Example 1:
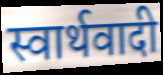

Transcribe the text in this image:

स्वार्थवादी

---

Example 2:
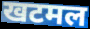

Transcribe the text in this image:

खटमल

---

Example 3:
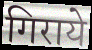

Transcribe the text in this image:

गिराये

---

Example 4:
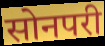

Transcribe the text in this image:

सोनपरी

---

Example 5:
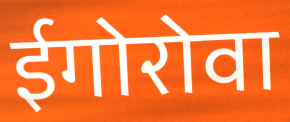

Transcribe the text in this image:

ईगोरोवा